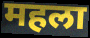
महला